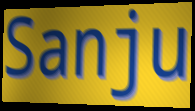
Sanju